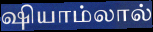
ஷியாம்லால்